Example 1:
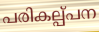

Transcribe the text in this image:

പരികല്പ്പന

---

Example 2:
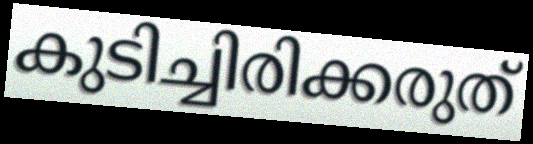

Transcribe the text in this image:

കുടിച്ചിരിക്കരുത്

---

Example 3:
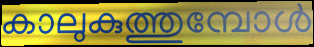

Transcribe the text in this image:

കാലുകുത്തുമ്പോൾ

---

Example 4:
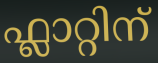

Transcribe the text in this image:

ഫ്ലാറ്റിന്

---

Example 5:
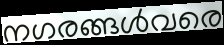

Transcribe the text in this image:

നഗരങ്ങൾവരെ